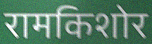
रामकिशोर